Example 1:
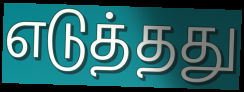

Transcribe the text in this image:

எடுத்தது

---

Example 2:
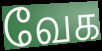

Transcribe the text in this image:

வேக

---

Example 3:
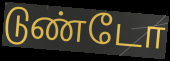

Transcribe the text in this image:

டுண்டோ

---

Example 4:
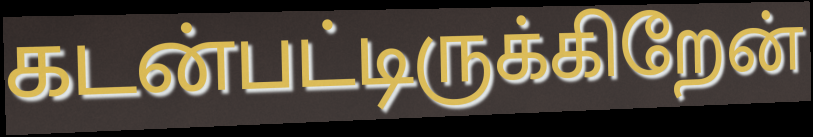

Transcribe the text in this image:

கடன்பட்டிருக்கிறேன்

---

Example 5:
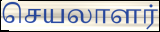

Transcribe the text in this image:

செயலாளர்